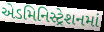
એડમિનિસ્ટ્રેશનમાં